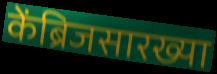
केंब्रिजसारख्या